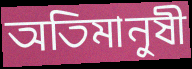
অতিমানুষী